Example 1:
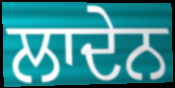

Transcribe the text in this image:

ਲਾਦੇਨ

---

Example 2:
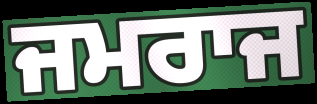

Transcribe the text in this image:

ਜਮਰਾਜ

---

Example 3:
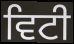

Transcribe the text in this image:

ਵਿਟੀ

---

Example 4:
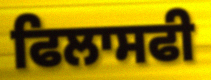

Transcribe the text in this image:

ਫਿਲਾਸਫੀ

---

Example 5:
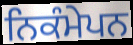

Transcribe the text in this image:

ਨਿਕੰਮੇਪਨ